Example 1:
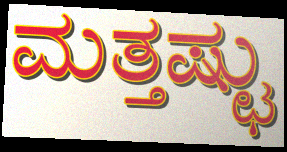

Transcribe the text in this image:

ಮತ್ತಷ್ಟು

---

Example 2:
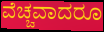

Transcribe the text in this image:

ವೆಚ್ಚವಾದರೂ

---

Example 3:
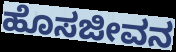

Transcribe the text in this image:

ಹೊಸಜೀವನ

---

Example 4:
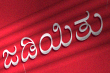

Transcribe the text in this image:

ಜಡಿಯಿತು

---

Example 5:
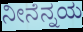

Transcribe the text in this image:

ನೀನೆನ್ನಯ